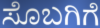
ಸೊಬಗಿಗೆ